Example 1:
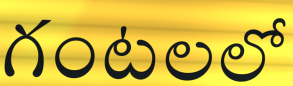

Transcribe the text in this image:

గంటలలో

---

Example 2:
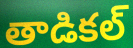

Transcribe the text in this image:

తాడికల్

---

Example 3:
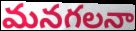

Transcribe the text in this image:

మనగలనా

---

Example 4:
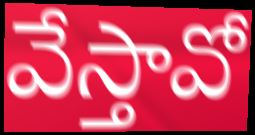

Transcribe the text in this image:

వేస్తావో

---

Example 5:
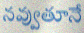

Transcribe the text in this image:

నవ్వుతూనే